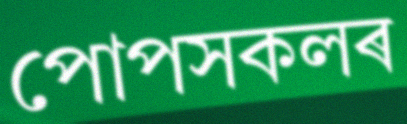
পোপসকলৰ